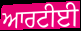
ਆਰਟੀਈ